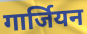
गार्जियन